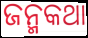
ଜନ୍ମକଥା